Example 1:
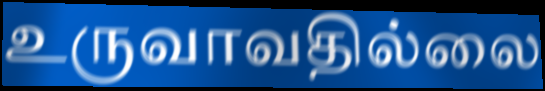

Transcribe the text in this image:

உருவாவதில்லை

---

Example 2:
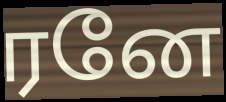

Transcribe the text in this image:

ரனே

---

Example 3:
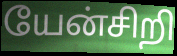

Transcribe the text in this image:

யேன்சிறி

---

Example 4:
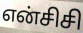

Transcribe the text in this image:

என்சிசி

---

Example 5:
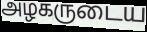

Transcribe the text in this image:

அழகருடைய